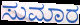
ಸುಮಾರ